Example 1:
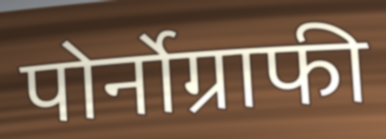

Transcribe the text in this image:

पोर्नोग्राफी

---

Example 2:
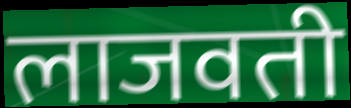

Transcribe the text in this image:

लाजवती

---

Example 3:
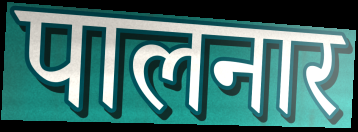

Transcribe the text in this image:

पालनार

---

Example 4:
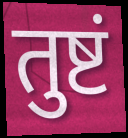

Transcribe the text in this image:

तुष्टं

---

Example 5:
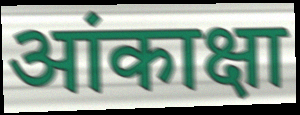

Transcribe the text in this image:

आंकाक्षा